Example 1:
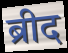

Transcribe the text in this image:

ब्रीद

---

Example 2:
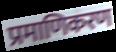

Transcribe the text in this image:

प्रमाणिकरण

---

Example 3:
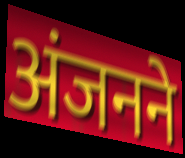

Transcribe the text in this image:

अंजनने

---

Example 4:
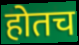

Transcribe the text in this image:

होतच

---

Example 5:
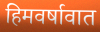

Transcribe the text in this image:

हिमवर्षावात